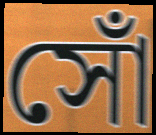
সোঁ